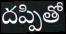
దప్పితో